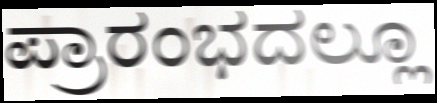
ಪ್ರಾರಂಭದಲ್ಲೂ